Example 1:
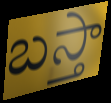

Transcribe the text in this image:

బస్తా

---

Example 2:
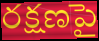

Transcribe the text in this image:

రక్షణపై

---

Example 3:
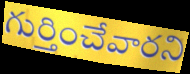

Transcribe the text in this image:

గుర్తించేవారని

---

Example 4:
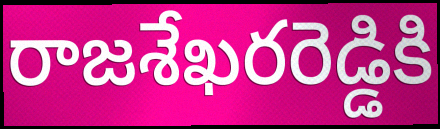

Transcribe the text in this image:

రాజశేఖరరెడ్డికి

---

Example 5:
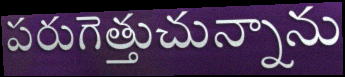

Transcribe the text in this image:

పరుగెత్తుచున్నాను